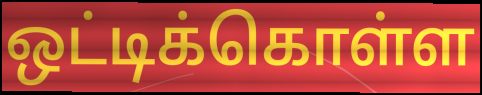
ஒட்டிக்கொள்ள